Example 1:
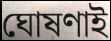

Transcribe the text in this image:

ঘোষণাই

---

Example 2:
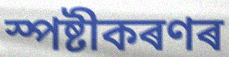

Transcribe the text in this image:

স্পষ্টীকৰণৰ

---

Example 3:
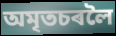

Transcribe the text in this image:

অমৃতচৰলৈ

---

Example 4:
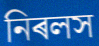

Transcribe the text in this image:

নিৰলস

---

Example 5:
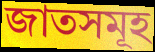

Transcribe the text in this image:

জাতসমূহ